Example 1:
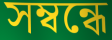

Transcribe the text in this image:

সম্বন্ধে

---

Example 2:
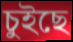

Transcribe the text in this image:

চুইছে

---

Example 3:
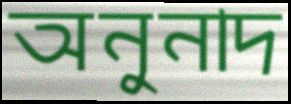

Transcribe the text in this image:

অনুনাদ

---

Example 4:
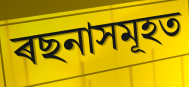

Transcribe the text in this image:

ৰছনাসমূহত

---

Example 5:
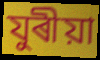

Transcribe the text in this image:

যুৰীয়া